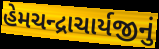
હેમચન્દ્રાચાર્યજીનું